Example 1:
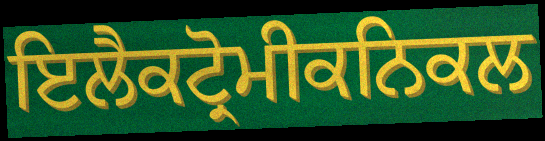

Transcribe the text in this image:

ਇਲੈਕਟ੍ਰੋਮੀਕਨਿਕਲ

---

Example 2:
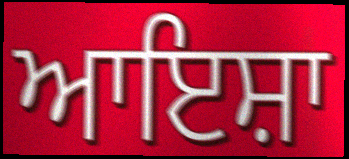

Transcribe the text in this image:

ਆਇਸ਼ਾ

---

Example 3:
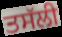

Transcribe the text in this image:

ਤਸੱਲੀ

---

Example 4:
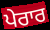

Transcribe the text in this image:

ਪੇਰਾਰ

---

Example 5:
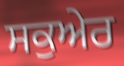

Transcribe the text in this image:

ਸਕੁਅੇਰ